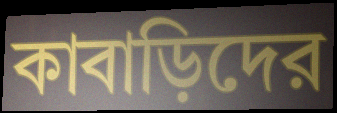
কাবাড়িদের